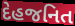
દેહજનિત